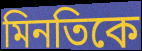
মিনতিকে